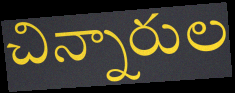
చిన్నారుల